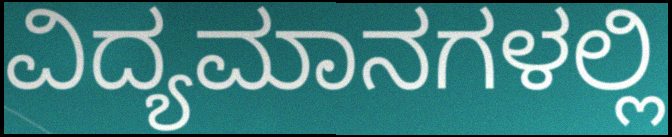
ವಿದ್ಯಮಾನಗಳಲ್ಲಿ